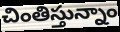
చింతిస్తున్నాం